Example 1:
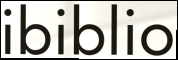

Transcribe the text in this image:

ibiblio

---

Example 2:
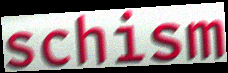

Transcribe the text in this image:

schism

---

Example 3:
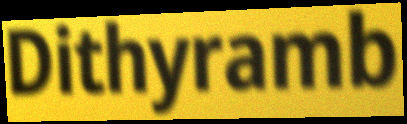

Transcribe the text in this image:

Dithyramb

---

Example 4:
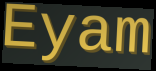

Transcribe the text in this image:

Eyam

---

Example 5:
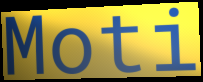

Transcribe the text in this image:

Moti